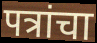
पत्रांचा